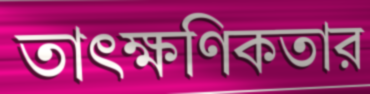
তাৎক্ষণিকতার